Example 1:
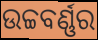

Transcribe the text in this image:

ଉଚ୍ଚବର୍ଣ୍ଣର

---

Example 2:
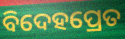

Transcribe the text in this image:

ବିଦେହପ୍ରେତ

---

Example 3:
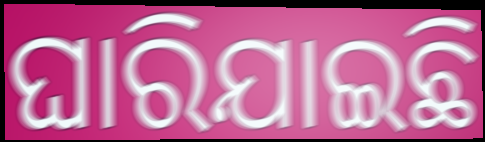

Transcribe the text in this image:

ଘାରିଯାଇଛି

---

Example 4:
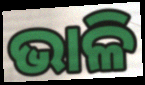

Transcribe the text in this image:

ଭାଳି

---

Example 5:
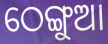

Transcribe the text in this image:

ଠେଙ୍ଗୁଆ